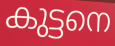
കുട്ടനെ